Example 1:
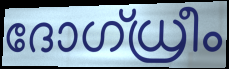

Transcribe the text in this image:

ദോഗ്ധ്രീം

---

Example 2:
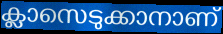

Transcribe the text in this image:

ക്ലാസെടുക്കാനാണ്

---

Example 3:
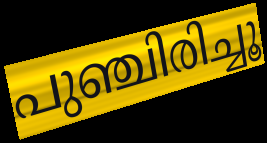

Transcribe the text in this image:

പുഞ്ചിരിച്ചൂ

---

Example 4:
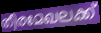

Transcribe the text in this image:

തീരമേഖലക്ക്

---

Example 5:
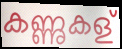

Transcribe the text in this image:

കണ്ണുകള്